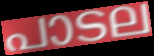
പാടല